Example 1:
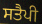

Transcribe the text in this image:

ਸਤੈਪੀ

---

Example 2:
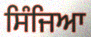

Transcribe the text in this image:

ਸਿੰਜਿਆ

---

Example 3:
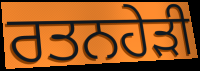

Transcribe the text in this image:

ਰਤਨਹੇੜੀ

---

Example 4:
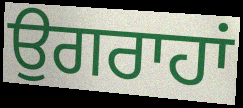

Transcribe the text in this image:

ਉਗਰਾਹਾਂ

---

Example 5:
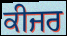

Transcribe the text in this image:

ਕੀਜਰ